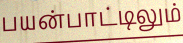
பயன்பாட்டிலும்